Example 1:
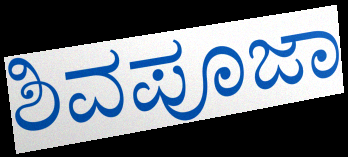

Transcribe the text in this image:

ಶಿವಪೂಜಾ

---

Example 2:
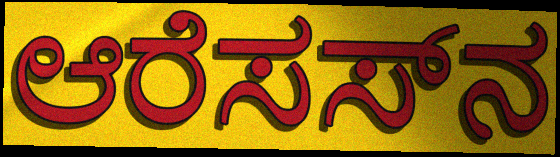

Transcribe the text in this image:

ಆರೆಸಸ್‌ನ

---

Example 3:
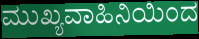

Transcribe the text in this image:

ಮುಖ್ಯವಾಹಿನಿಯಿಂದ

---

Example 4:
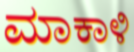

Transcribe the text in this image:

ಮಾಕಾಳಿ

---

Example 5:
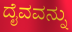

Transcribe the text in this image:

ದೈವವನ್ನು